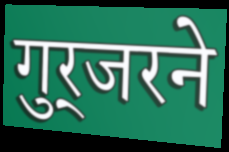
गुर्जरने